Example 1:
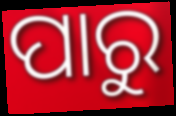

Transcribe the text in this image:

ପାରୁ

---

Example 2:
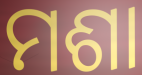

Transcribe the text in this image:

ମଶା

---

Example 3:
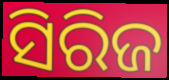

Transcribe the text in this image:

ସିରିଜ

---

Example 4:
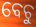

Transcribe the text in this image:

ବେଚୁ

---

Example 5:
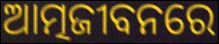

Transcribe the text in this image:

ଆତ୍ମଜୀବନରେ